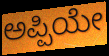
ಅಪ್ಪಿಯೇ